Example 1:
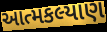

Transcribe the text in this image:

આત્મકલ્યાણ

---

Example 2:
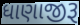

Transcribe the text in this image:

ધાણાજીરૂ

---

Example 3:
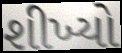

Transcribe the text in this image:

શીખ્યો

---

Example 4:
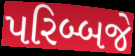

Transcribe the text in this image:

પરિબ્બજે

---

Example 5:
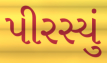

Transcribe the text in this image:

પીરસ્યું